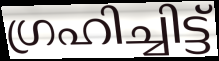
ഗ്രഹിച്ചിട്ട്